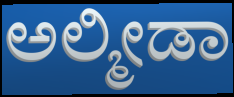
ಅಲ್ಮೀಡಾ